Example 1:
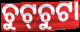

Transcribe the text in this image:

ଚୁଟ୍‌ଚୁଟା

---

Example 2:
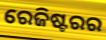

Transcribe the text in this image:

ରେଜିଷ୍ଟରର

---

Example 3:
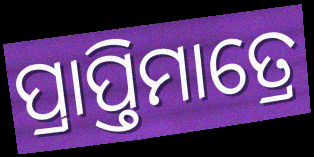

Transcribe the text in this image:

ପ୍ରାପ୍ତିମାତ୍ରେ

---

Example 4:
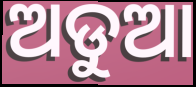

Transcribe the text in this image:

ଅଡୁଆ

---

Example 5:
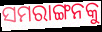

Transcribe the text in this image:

ସମରାଙ୍ଗନକୁ